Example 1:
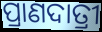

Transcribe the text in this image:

ପ୍ରାଣଦାତ୍ରୀ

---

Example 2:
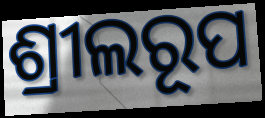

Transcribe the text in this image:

ଶ୍ରୀଲରୂପ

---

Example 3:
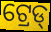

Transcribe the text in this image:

ଟ୍ରେଡ୍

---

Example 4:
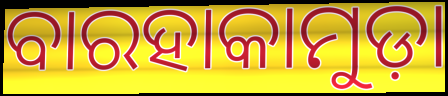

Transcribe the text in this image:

ବାରହାକାମୁଡ଼ା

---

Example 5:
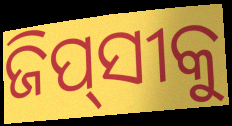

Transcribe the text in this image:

ଜିପ୍‌ସୀକୁ